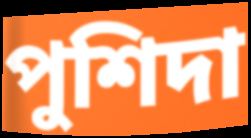
পুশিদা